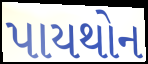
પાયથોન